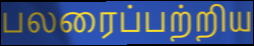
பலரைப்பற்றிய